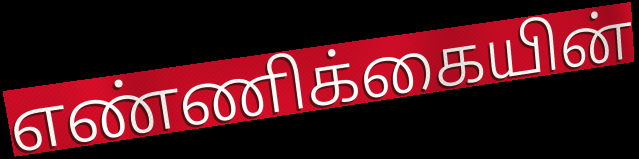
எண்ணிக்கையின்